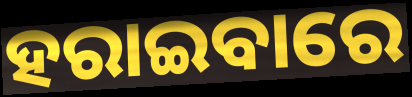
ହରାଇବାରେ